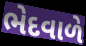
ભેદવાળે